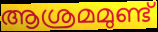
ആശ്രമമുണ്ട്